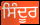
ਸਿੰਦੂਰ